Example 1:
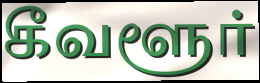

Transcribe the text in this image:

கீவளூர்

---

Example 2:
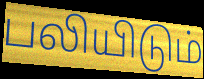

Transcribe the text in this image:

பலியிடும்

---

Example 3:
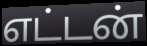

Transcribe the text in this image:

எட்டன்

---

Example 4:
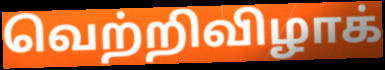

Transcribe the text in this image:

வெற்றிவிழாக்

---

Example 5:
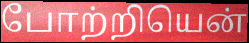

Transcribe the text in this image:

போற்றியென்